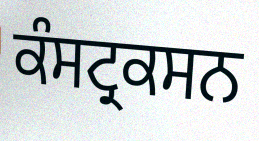
ਕੰਸਟ੍ਰਕਸਨ